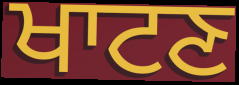
ਖਾਟਣ